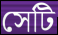
সেটি